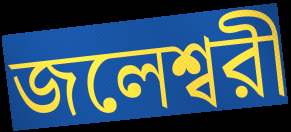
জলেশ্বরী